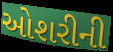
ઓશરીની